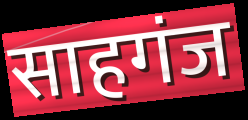
साहगंज